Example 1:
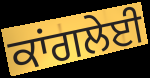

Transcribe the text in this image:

ਕਾਂਗਲੇਈ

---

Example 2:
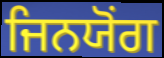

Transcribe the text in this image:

ਜਿਨਯੋਂਗ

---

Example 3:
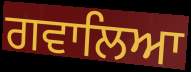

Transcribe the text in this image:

ਗਵਾਲਿਆ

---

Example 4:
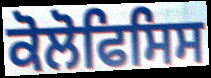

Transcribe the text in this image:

ਕੋਲੋਫਿਸਿਸ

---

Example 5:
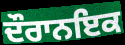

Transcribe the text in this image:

ਦੌਰਾਨਇਕ